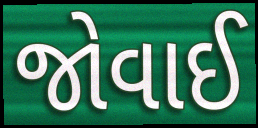
જોવાઈ